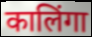
कालिंगा